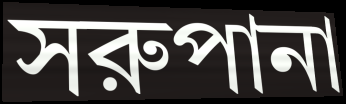
সরুপানা